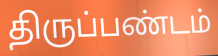
திருப்பண்டம்